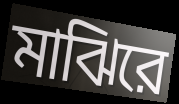
মাঝিরে